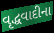
વૃદ્ધવાદીના